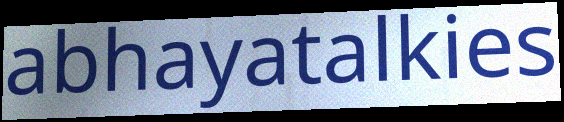
abhayatalkies